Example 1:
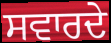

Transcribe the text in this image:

ਸਵਾਰਦੇ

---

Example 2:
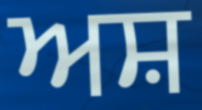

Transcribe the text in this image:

ਅਸ਼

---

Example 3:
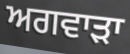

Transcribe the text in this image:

ਅਗਵਾੜਾ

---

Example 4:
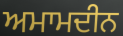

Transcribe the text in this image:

ਅਮਾਮਦੀਨ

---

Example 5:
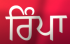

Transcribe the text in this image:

ਰਿੰਪਾ